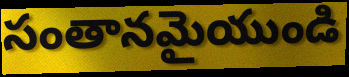
సంతానమైయుండి